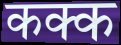
कक्क